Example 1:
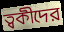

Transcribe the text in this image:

ত্বকীদের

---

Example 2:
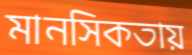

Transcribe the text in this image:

মানসিকতায়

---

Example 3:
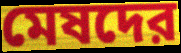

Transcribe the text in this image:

মেষদের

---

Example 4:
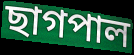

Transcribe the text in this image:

ছাগপাল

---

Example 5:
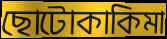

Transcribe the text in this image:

ছোটোকাকিমা